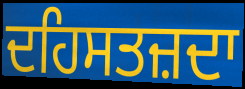
ਦਹਿਸਤਜ਼ਦਾ